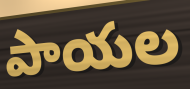
పాయల